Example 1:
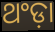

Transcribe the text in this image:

ଥଂଡ଼ା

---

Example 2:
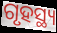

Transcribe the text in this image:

ଗୃହସ୍ଥ୍ୟ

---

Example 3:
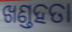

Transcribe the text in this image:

ଖଣ୍ଡହତା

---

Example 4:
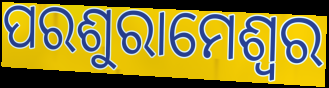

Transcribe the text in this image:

ପରଶୁରାମେଶ୍ୱର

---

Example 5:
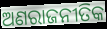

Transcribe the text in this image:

ଅଣରାଜନୀତିକ